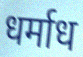
धर्माध